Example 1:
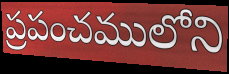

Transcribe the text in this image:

ప్రపంచములోని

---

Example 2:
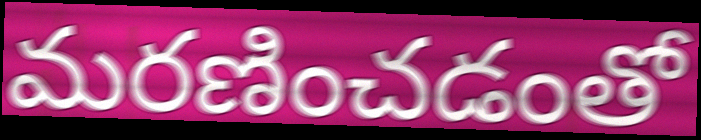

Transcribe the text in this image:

మరణించడంతో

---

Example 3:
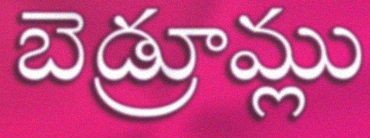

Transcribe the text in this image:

బెడ్రూమ్లు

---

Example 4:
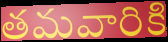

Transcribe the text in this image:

తమవారికి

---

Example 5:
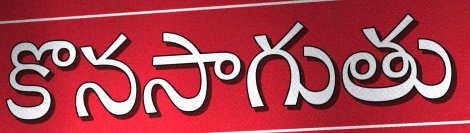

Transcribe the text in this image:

కొనసాగుతు